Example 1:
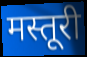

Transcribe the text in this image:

मस्तूरी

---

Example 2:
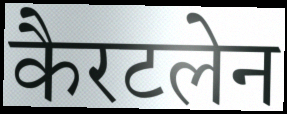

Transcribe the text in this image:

कैरटलेन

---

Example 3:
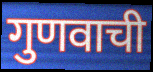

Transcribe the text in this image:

गुणवाची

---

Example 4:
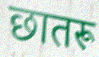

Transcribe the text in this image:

छातरू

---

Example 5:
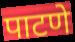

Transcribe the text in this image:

पाटणे